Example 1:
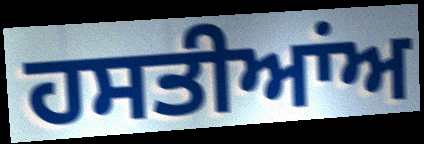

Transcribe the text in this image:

ਹਸਤੀਆਂਅ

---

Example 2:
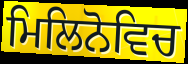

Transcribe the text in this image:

ਮਿਲਿਨੋਵਿਚ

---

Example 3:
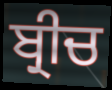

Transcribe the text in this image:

ਬ੍ਰੀਚ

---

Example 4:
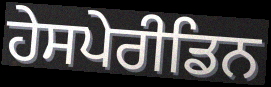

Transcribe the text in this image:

ਹੇਸਪੇਰੀਡਿਨ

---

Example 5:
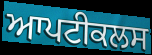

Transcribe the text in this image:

ਆਪਟੀਕਲਸ